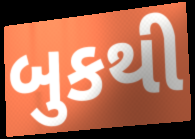
બુકથી